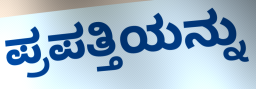
ಪ್ರಪತ್ತಿಯನ್ನು